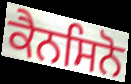
ਕੈਨਸਿਨੋ